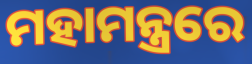
ମହାମନ୍ତ୍ରରେ